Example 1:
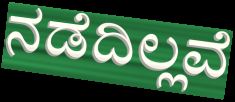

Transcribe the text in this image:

ನಡೆದಿಲ್ಲವೆ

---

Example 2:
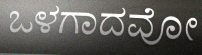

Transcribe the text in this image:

ಒಳಗಾದವೋ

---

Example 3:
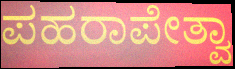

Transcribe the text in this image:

ಪಹರಾಪೇತ್ವಾ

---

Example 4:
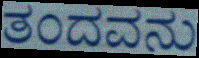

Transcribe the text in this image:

ತಂದವನು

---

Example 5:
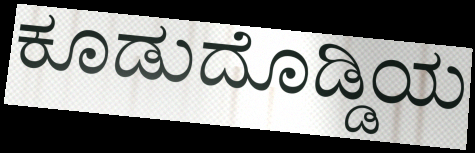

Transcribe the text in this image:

ಕೂಡುದೊಡ್ಡಿಯ